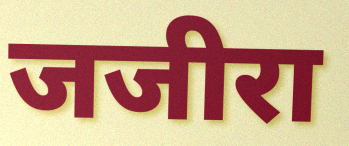
जजीरा